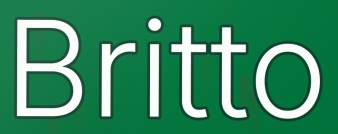
Britto